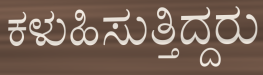
ಕಳುಹಿಸುತ್ತಿದ್ದರು